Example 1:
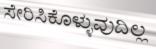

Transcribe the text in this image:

ಸೇರಿಸಿಕೊಳ್ಳುವುದಿಲ್ಲ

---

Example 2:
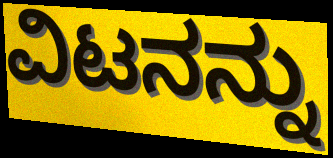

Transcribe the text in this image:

ವಿಟನನ್ನು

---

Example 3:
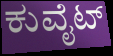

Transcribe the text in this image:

ಕುವೈಟ್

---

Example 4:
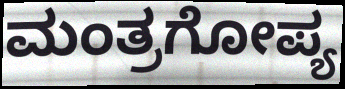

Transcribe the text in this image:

ಮಂತ್ರಗೋಪ್ಯ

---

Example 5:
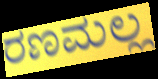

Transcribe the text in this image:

ರಣಮಲ್ಲ